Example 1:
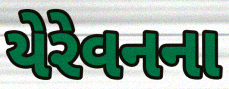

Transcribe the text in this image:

યેરેવનના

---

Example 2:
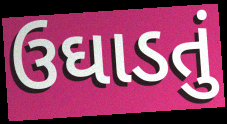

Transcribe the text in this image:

ઉઘાડતું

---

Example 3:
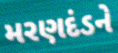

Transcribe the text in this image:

મરણદંડને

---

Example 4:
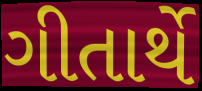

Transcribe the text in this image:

ગીતાર્થે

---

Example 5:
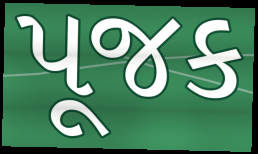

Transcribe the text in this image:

પૂજક